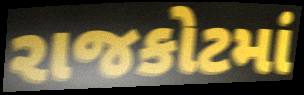
રાજકોટમાં